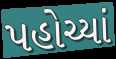
પહોચ્યાં